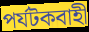
পর্যটকবাহী